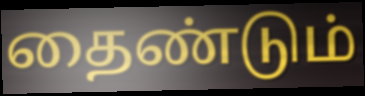
தைண்டும்